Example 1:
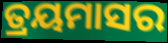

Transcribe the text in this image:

ତ୍ରୟମାସର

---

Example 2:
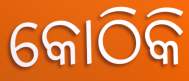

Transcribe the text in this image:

କୋଠିକି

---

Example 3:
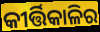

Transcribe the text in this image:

କୀର୍ତ୍ତିକାଳିର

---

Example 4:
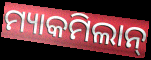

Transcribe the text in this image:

ମ୍ୟାକମିଲାନ୍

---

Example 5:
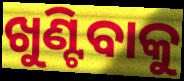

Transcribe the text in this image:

ଖୁଣ୍ଟିବାକୁ